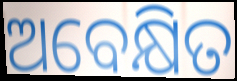
ଅବେକ୍ଷିତ